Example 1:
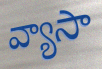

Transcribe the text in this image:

వ్యాసా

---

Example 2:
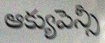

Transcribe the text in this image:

ఆక్యుపెన్సీ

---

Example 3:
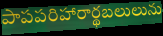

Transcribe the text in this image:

పాపపరిహారార్థబలులును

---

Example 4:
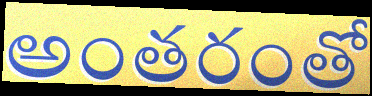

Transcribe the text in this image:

అంతరంతో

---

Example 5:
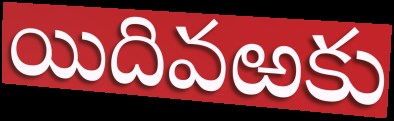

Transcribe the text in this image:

యిదివఱకు